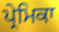
ਪ੍ਰੇਮਿਕਾ